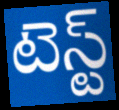
టెస్ట్